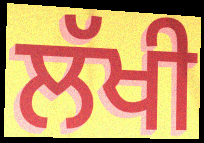
ਲੱਖੀ